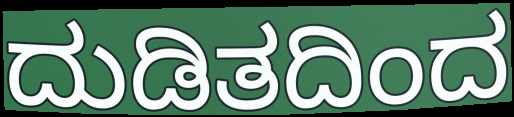
ದುಡಿತದಿಂದ